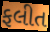
ફલીત